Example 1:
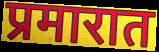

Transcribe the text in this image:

प्रमारात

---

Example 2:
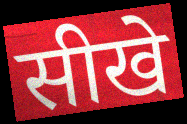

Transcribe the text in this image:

सीखे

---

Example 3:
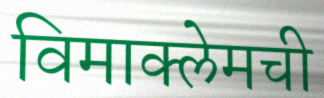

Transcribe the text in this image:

विमाक्लेमची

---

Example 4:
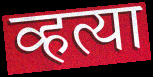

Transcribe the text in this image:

व्हत्या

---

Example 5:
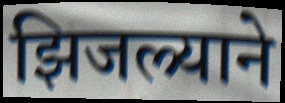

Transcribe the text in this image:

झिजल्याने